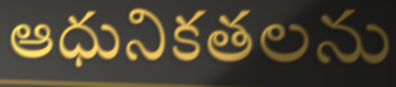
ఆధునికతలను